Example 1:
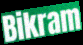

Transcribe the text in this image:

Bikram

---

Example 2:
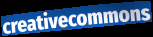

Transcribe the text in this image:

creativecommons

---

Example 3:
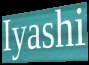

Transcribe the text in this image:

Iyashi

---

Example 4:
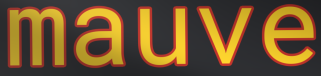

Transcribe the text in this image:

mauve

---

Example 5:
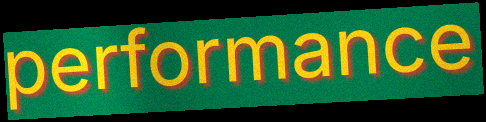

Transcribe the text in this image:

performance